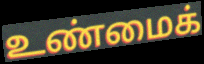
உண்மைக்